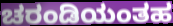
ಚರಂಡಿಯಂತಹ